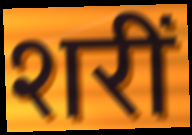
शरीं